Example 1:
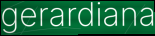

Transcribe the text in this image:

gerardiana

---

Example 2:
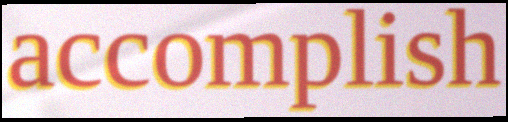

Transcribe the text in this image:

accomplish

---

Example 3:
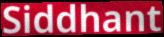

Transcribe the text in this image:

Siddhant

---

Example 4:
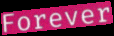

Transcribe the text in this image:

Forever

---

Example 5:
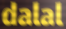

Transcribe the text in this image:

dalal